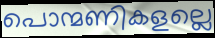
പൊന്മണികളല്ലെ